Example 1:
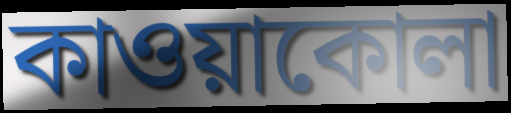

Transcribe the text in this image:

কাওয়াকোলা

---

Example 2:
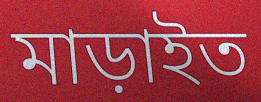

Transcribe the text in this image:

মাড়াইত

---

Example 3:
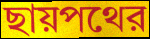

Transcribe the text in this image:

ছায়পথের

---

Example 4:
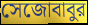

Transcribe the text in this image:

সেজোবাবুর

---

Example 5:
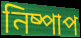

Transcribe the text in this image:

নিষ্পাপ